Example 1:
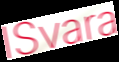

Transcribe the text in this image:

ISvara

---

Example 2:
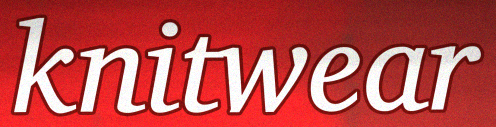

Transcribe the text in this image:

knitwear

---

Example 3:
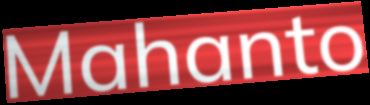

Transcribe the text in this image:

Mahanto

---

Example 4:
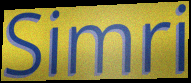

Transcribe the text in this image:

Simri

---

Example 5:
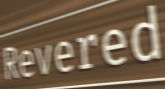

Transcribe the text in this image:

Revered